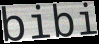
bibi